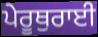
ਪੇਰੂਥੁਰਾਈ